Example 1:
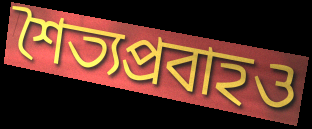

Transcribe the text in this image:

শৈত্যপ্রবাহও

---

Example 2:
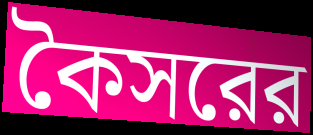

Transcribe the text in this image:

কৈসরের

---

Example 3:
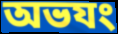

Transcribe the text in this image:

অভযং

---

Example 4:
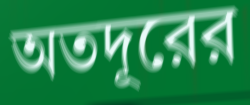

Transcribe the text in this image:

অতদূরের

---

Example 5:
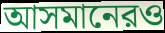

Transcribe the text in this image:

আসমানেরও